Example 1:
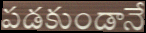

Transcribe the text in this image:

పడకుండానే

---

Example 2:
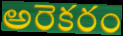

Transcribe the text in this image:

అరెకరం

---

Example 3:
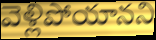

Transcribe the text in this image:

వెళ్లిపోయానని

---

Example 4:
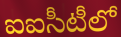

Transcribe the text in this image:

ఐఐసీటీలో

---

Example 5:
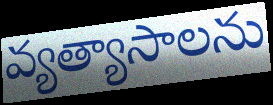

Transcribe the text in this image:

వ్యత్యాసాలను